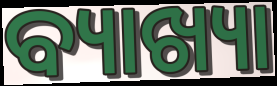
ବ୍ୟାଖ୍ୟା